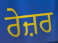
ਰੇਜ਼ਰ